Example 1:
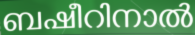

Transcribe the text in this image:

ബഷീറിനാൽ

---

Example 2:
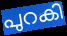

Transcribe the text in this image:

പുറകി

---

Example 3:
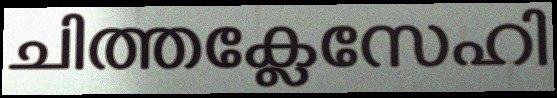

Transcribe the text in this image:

ചിത്തക്ലേസേഹി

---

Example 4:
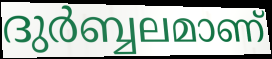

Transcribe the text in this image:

ദുർബ്ബലമാണ്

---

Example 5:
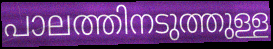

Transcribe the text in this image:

പാലത്തിനടുത്തുള്ള